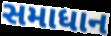
સમાધાન